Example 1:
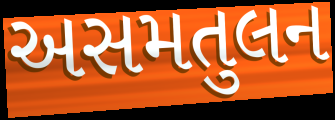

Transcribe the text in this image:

અસમતુલન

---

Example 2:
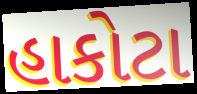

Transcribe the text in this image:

હાકોટા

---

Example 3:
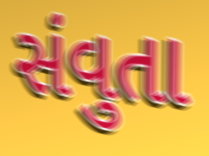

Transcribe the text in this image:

સંવુતા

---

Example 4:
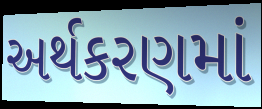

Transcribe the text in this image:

અર્થકરણમાં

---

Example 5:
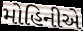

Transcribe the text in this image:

મોહિનીએ